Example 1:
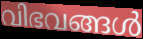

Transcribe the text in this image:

വിഭവങ്ങൾ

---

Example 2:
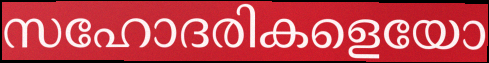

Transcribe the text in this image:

സഹോദരികളെയോ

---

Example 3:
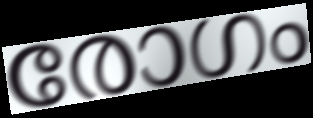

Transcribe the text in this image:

രോഗം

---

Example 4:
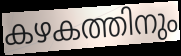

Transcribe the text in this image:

കഴകത്തിനും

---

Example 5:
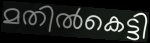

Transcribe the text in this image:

മതിൽകെട്ടി